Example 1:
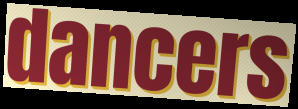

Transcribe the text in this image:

dancers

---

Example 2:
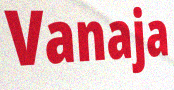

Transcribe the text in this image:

Vanaja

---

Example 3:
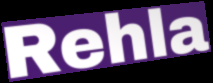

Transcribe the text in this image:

Rehla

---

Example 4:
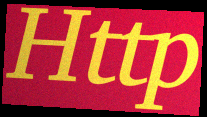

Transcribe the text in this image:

Http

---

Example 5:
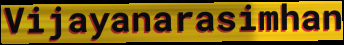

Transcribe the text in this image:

Vijayanarasimhan